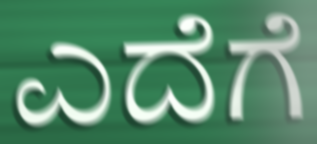
ಎದೆಗೆ